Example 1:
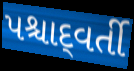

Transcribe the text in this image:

પશ્ચાદ્‌વર્તી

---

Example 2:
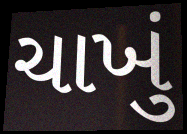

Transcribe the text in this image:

ચાખું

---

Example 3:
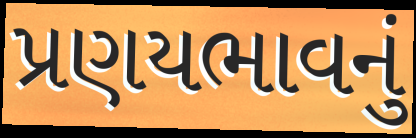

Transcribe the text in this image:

પ્રણયભાવનું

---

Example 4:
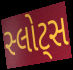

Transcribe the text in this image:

સ્લોટ્સ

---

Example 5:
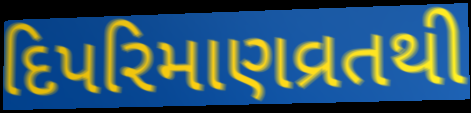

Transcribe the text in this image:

દિપરિમાણવ્રતથી